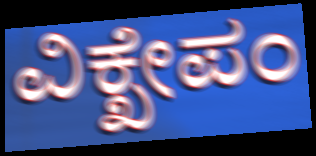
ವಿಕ್ಖೇಪಂ